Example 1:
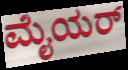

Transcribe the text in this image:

ಮೈಯರ್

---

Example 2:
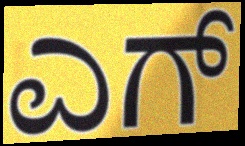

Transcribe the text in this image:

ಎಗ್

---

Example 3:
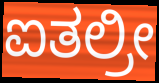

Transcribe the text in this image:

ಐತಲ್ರೀ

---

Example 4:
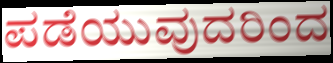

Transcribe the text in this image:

ಪಡೆಯುವುದರಿಂದ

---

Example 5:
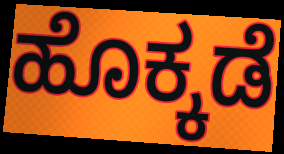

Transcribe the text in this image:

ಹೊಕ್ಕಡೆ